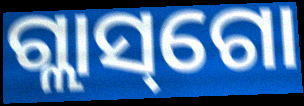
ଗ୍ଲାସ୍‌ଗୋ